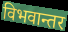
विभवान्तर